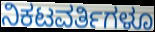
ನಿಕಟವರ್ತಿಗಳೂ